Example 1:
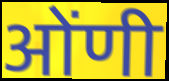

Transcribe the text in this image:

ओंणी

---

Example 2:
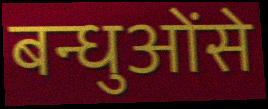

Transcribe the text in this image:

बन्धुओंसे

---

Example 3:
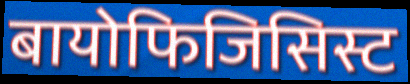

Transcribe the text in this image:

बायोफिजिसिस्ट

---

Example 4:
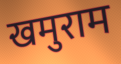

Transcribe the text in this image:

खमुराम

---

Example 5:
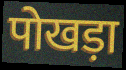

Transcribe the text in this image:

पोखड़ा